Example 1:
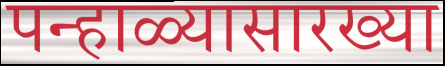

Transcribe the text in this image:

पन्हाळ्यासारख्या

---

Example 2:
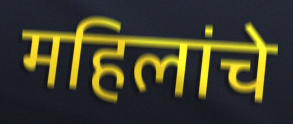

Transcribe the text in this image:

महिलांचे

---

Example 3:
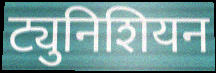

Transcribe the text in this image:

ट्युनिशियन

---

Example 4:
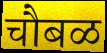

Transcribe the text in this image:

चौबळ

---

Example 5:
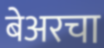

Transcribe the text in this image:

बेअरचा